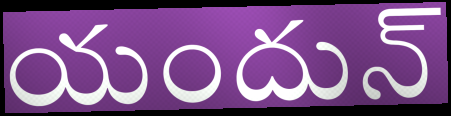
యందున్